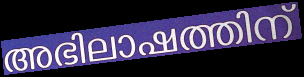
അഭിലാഷത്തിന്